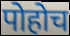
पोहोच